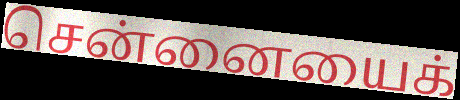
சென்னையைக்